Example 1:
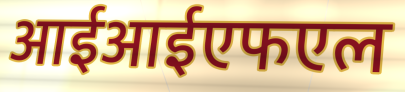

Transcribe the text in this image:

आईआईएफएल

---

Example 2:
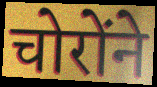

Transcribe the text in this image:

चोरोंने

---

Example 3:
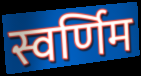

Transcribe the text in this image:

स्‍वर्णिम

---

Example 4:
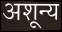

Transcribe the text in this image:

अशून्य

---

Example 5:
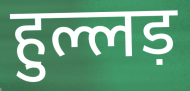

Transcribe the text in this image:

हुल्लड़